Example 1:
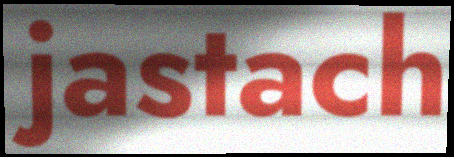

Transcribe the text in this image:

jastach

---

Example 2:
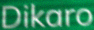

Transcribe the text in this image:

Dikaro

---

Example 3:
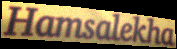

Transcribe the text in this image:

Hamsalekha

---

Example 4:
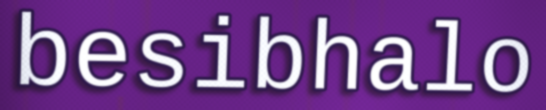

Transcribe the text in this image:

besibhalo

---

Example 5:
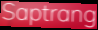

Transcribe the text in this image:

Saptrang